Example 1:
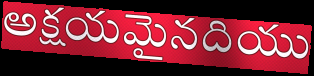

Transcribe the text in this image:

అక్షయమైనదియు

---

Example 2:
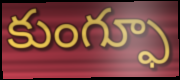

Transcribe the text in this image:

కుంగ్ఫూ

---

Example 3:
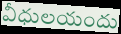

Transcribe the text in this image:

వీధులయందు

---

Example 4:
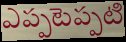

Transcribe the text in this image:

ఎప్పటెప్పటి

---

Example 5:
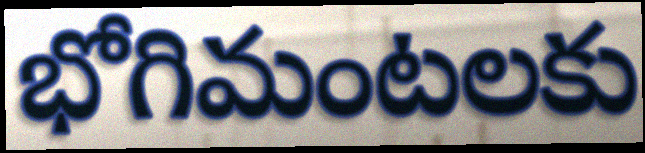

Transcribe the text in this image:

భోగిమంటలకు